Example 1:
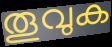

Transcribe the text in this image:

തൂവുക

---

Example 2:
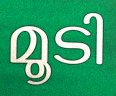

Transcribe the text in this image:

മൂടി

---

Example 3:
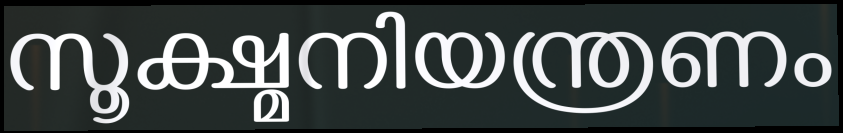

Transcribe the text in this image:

സൂക്ഷ്മനിയന്ത്രണം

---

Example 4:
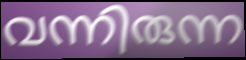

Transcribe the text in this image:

വന്നിരുന്ന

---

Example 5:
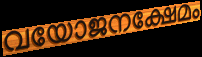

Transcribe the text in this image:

വയോജനക്ഷേമം